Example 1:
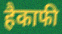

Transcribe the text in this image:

हैकाफी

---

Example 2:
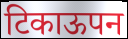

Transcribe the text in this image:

टिकाऊपन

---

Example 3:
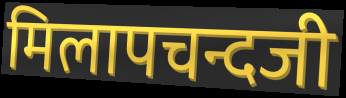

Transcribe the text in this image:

मिलापचन्दजी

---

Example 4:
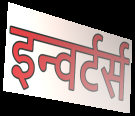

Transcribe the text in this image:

इन्वर्टर्स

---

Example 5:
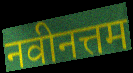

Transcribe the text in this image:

नवीनत्तम